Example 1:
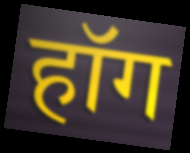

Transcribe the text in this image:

हॉग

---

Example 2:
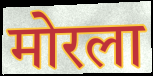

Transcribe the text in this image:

मोरला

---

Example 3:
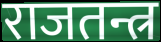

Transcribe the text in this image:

राजतन्त्र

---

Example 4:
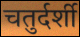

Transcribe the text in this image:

चतुर्दर्शी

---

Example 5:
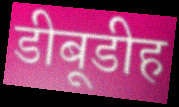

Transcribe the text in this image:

डीबूडीह